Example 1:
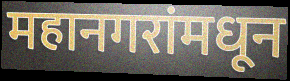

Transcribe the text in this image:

महानगरांमधून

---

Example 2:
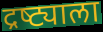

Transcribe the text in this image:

द्रष्ट्याला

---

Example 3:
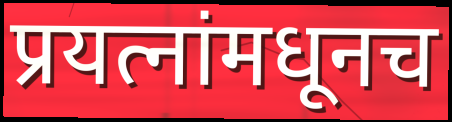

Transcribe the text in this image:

प्रयत्नांमधूनच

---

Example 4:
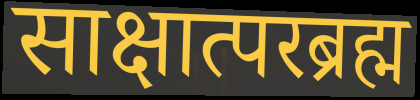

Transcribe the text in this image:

साक्षात्परब्रह्म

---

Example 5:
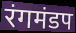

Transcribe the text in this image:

रंगमंडप